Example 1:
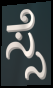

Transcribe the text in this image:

ಸ್ಸೆ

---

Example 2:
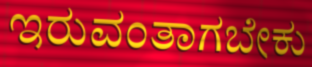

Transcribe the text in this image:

ಇರುವಂತಾಗಬೇಕು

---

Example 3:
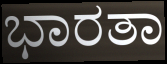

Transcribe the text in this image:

ಭಾರತಾ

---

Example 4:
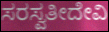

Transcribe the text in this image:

ಸರಸ್ವತೀದೇವಿ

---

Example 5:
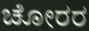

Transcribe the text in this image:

ಚೋರರ